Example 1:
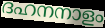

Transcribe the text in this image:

ദഹനനാളം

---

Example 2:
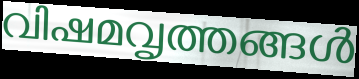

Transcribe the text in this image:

വിഷമവൃത്തങ്ങൾ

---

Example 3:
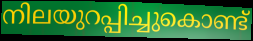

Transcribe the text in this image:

നിലയുറപ്പിച്ചുകൊണ്ട്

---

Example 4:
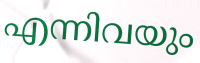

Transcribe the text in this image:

എന്നിവയും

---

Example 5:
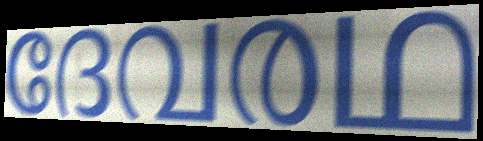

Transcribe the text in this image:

ദേവരഥ